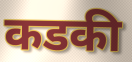
कडकी